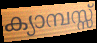
ക്യാമ്പസ്സ്